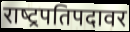
राष्ट्रपतिपदावर